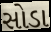
સોડા